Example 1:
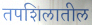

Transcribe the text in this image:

तपशिलातील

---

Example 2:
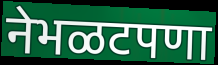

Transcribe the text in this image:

नेभळटपणा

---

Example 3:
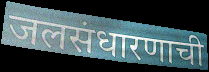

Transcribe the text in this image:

जलसंधारणाची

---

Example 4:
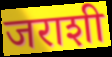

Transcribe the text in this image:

जराशी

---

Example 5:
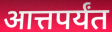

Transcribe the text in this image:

आत्तपर्यंत